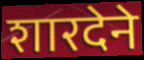
शारदेने